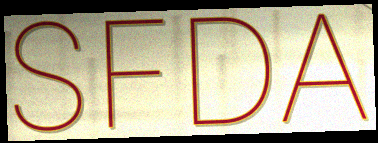
SFDA